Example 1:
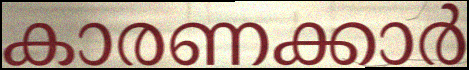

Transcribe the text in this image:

കാരണക്കാർ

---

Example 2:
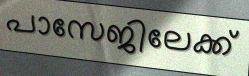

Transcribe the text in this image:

പാസേജിലേക്ക്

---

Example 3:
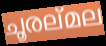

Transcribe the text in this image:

ചൂരല്മല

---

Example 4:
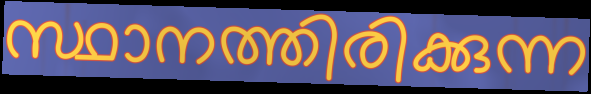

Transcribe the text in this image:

സ്ഥാനത്തിരിക്കുന്ന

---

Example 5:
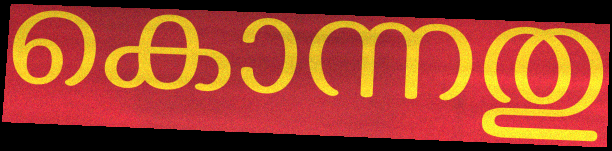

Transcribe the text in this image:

കൊന്നതു